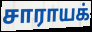
சாராயக்